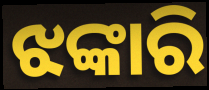
ଝଙ୍କାରି